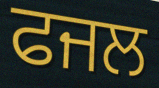
ਫਜਲ